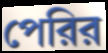
পেরির